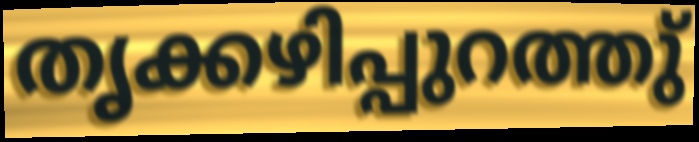
തൃക്കഴിപ്പുറത്തു്